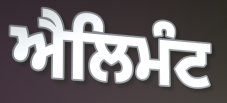
ਐਲਿਮੰਟ